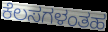
ಕೆಲಸಗಳಂತಹ